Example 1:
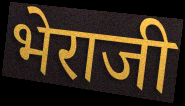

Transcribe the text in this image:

भेराजी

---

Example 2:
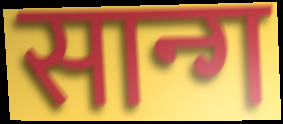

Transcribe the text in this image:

सान्ग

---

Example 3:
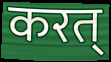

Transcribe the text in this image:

करत्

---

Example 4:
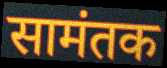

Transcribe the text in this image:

सामंतक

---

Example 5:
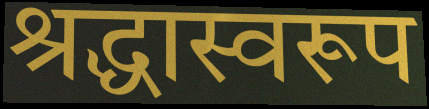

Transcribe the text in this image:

श्रद्धास्वरूप